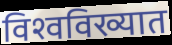
विश्वविख्यात